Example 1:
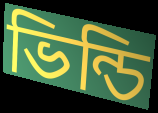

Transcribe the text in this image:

ভিন্ডি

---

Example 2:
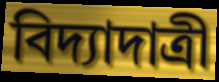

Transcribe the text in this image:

বিদ্যাদাত্রী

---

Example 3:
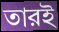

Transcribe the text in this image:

তারই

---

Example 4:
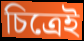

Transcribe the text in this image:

চিত্রেই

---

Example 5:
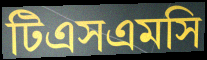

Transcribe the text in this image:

টিএসএমসি